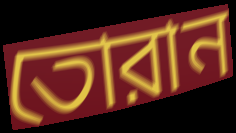
তোরান